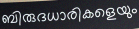
ബിരുദധാരികളെയും